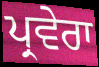
ਪ੍ਰਵੇਰਾ